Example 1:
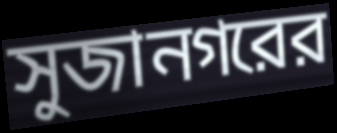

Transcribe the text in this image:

সুজানগরের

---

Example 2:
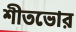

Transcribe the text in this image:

শীতভোর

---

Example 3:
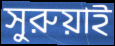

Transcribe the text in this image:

সুরুয়াই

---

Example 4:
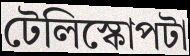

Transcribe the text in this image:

টেলিস্কোপটা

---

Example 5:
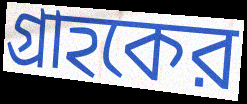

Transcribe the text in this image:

গ্রাহকের